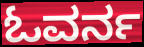
ಓವರ್ನ